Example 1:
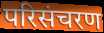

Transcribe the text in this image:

परिसंचरण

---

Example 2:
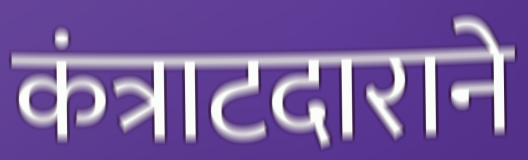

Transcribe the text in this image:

कंत्राटदाराने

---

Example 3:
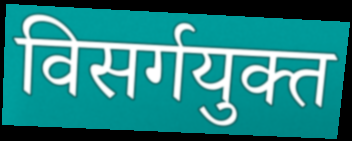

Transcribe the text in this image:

विसर्गयुक्त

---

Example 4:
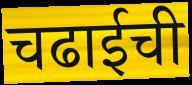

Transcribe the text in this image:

चढाईची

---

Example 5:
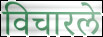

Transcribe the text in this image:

विचारले